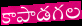
కాపాడగల